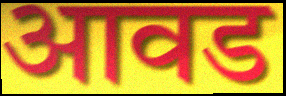
आवड